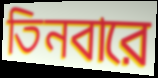
তিনবারে